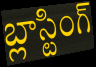
బ్లాస్టింగ్